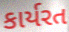
કાર્યરત